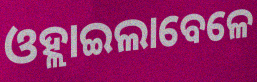
ଓହ୍ଲାଇଲାବେଳେ